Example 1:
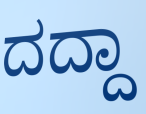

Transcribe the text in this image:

ದದ್ದಾ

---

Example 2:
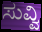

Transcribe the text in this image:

ಸುವ್ವಿ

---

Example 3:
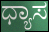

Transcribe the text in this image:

ಧ್ಯಾಸ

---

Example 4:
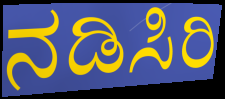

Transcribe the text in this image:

ನಡಿಸಿರಿ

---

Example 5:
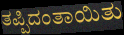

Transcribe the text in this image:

ತಪ್ಪಿದಂತಾಯಿತು